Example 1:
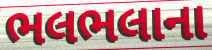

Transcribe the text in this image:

ભલભલાના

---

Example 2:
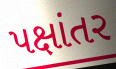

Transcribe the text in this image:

પક્ષાંતર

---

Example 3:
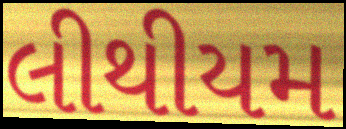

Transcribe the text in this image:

લીથીયમ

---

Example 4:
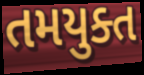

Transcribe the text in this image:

તમયુક્ત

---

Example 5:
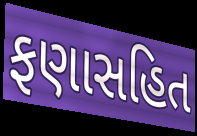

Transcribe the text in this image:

ફણાસહિત